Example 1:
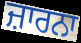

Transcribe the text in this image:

ਜ਼ਾਰਨਾ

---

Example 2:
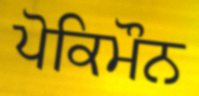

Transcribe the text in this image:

ਪੋਕਿਮੌਨ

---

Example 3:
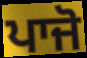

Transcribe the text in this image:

ਪਾਜੋ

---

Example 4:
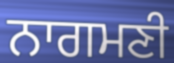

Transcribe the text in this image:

ਨਾਗਮਣੀ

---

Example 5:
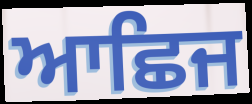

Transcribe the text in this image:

ਆਛਿਜ